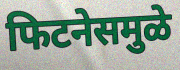
फिटनेसमुळे